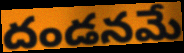
దండనమే